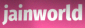
jainworld